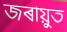
জৰায়ুত